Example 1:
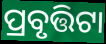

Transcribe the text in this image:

ପ୍ରବୃତ୍ତିଟା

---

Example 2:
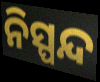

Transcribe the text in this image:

ନିସ୍ପନ୍ଦ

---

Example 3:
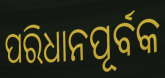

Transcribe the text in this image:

ପରିଧାନପୂର୍ବକ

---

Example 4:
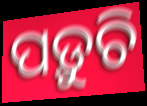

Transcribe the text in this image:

ପଡ଼ୁଚି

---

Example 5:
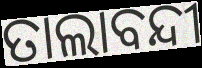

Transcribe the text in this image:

ତାଲାବନ୍ଦୀ